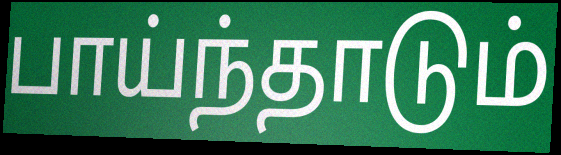
பாய்ந்தாடும்